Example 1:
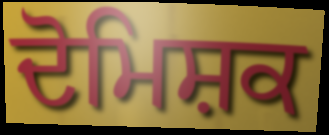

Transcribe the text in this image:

ਦੋਮਿਸ਼ਕ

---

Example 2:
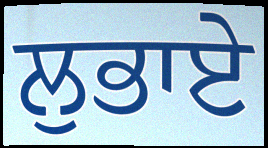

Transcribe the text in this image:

ਲੁਭਾਏ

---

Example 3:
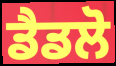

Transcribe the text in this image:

ਡੈਡਲੋ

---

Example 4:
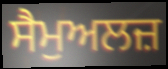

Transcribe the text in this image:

ਸੈਮੁਅਲਜ਼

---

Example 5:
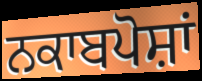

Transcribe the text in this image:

ਨਕਾਬਪੋਸ਼ਾਂ